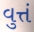
વુત્તં